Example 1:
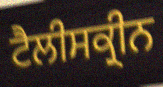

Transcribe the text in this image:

ਟੈਲੀਸਕ੍ਰੀਨ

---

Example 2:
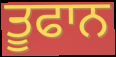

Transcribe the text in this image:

ਤੂਫਾਨ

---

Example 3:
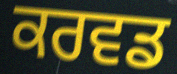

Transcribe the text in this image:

ਕਰਵਡ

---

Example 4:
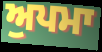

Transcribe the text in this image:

ਅੁਪਮਾ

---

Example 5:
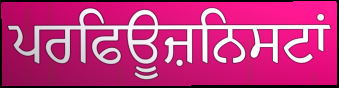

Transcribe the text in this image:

ਪਰਫਿਊਜ਼ਨਿਸਟਾਂ